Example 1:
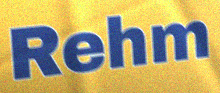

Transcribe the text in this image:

Rehm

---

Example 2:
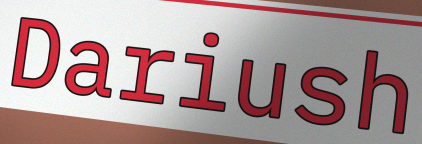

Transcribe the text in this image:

Dariush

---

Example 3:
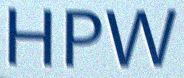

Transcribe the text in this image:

HPW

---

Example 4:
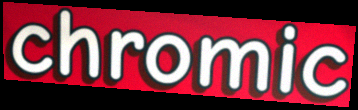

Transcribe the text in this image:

chromic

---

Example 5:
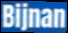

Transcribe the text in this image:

Bijnan